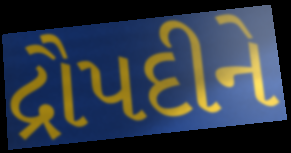
દ્રૌપદીને